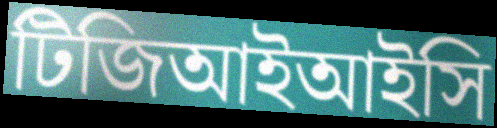
টিজিআইআইসি